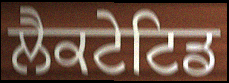
ਲੈਕਟੇਟਿਡ